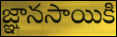
జ్ఞానసాయికి